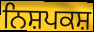
ਨਿਸ਼ਪਕਸ਼